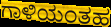
ಗಾಳಿಯಂತಹ